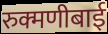
रुक्मणीबाई